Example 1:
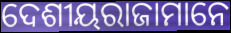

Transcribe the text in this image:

ଦେଶୀୟରାଜାମାନେ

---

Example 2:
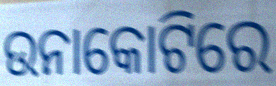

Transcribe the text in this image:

ଉନାକୋଟିରେ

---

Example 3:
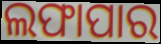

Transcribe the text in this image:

ଲଫାପାର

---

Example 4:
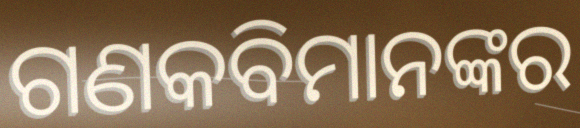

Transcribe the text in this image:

ଗଣକବିମାନଙ୍କର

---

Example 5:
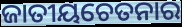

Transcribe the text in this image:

ଜାତୀୟଚେତନାର